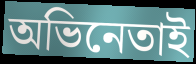
অভিনেতাই